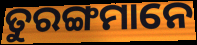
ତୁରଙ୍ଗମାନେ